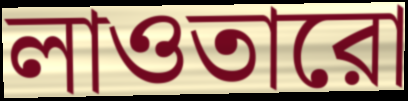
লাওতারো